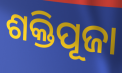
ଶକ୍ତିପୂଜା